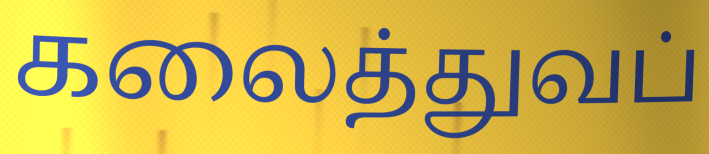
கலைத்துவப்